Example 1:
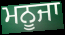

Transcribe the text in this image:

ਮਨੂਜਾ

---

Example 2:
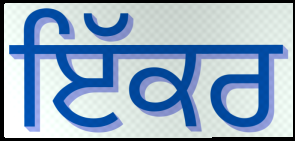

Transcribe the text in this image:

ਇੱਕਰ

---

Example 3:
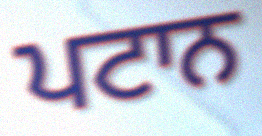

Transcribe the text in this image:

ਪਟਾਨ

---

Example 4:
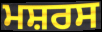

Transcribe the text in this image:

ਮਸ਼ਰਸ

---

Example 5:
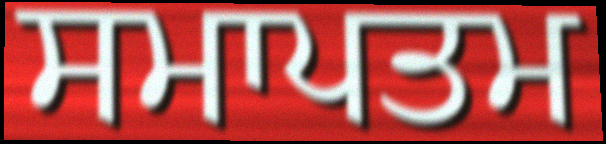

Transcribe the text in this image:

ਸਮਾਪਤਮ